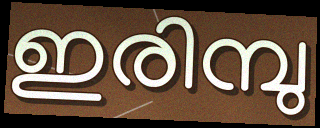
ഇരിമ്പു